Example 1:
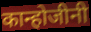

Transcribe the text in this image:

कान्होजीनी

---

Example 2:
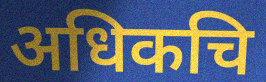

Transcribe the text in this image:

अधिकचि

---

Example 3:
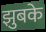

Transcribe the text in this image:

झुबके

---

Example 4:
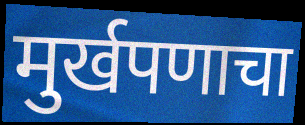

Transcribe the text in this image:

मुर्खपणाचा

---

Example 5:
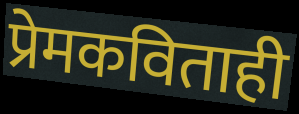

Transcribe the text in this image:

प्रेमकविताही